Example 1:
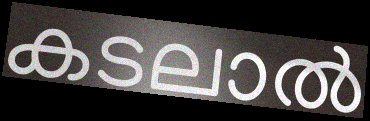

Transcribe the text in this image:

കടലാൽ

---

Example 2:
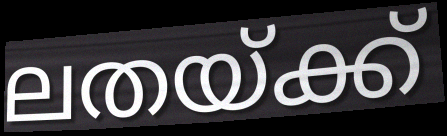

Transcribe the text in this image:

ലതയ്ക്ക്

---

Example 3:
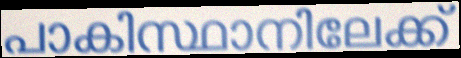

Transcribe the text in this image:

പാകിസ്ഥാനിലേക്ക്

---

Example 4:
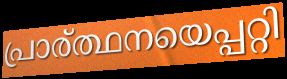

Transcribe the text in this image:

പ്രാര്ത്ഥനയെപ്പറ്റി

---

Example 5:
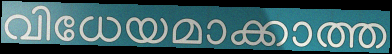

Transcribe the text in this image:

വിധേയമാക്കാത്ത